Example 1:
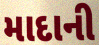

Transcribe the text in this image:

માદાની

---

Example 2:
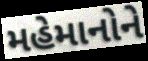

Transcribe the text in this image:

મહેમાનોને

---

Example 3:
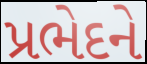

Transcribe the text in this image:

પ્રભેદને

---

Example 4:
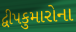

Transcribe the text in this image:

દ્વીપકુમારોના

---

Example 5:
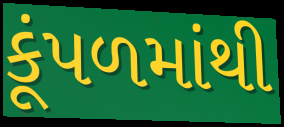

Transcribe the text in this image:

કૂંપળમાંથી